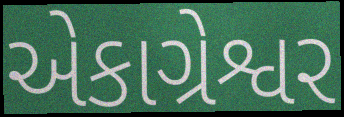
એકાગ્રેશ્વર